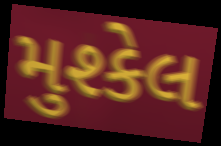
મુશ્કેલ